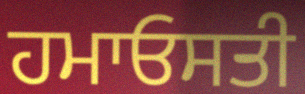
ਹਮਾਓਸਤੀ